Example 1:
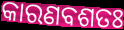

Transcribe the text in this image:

କାରଣବଶତଃ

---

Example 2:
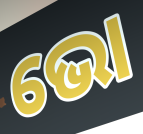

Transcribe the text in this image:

ଭୋ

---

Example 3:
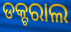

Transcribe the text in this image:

ଡକ୍ଟରାଲ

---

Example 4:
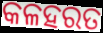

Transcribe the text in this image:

କଳହରତ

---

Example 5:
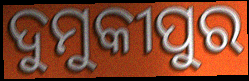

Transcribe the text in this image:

ଦୁମୁକୀପୁର